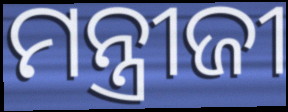
ମନ୍ତ୍ରୀଜୀ